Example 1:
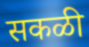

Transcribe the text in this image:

सकळी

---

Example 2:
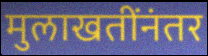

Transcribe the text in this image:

मुलाखतींनंतर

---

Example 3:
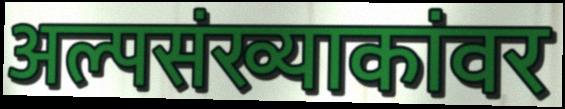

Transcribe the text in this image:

अल्पसंख्याकांवर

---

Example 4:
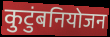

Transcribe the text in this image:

कुटुंबनियोजन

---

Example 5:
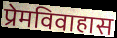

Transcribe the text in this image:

प्रेमविवाहास